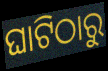
ଘାଟିଠାରୁ